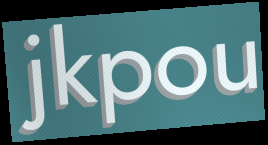
jkpou